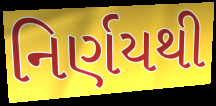
નિર્ણયથી